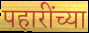
पहारींच्या